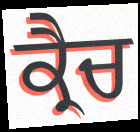
ਕ੍ਰੈਚ